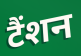
टैंशन